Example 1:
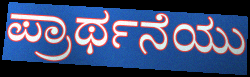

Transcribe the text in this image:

ಪ್ರಾರ್ಥನೆಯು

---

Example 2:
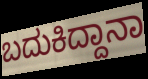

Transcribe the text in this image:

ಬದುಕಿದ್ದಾನಾ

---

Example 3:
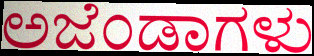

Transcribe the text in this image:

ಅಜೆಂಡಾಗಳು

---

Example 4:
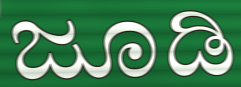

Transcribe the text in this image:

ಜೂಡಿ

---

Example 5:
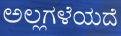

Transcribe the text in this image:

ಅಲ್ಲಗಳೆಯದೆ